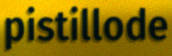
pistillode